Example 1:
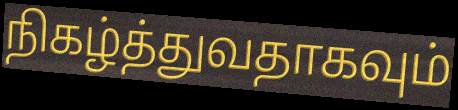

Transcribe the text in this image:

நிகழ்த்துவதாகவும்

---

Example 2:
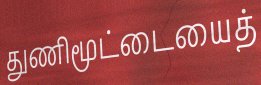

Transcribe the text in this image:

துணிமூட்டையைத்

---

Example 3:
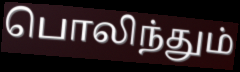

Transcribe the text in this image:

பொலிந்தும்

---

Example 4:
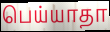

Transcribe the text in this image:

பெய்யாதா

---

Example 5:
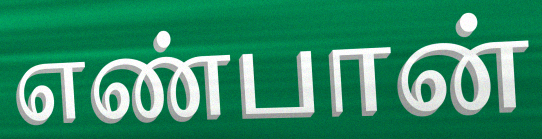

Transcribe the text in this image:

எண்பான்